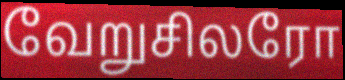
வேறுசிலரோ